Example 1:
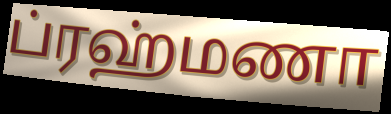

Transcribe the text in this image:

ப்ரஹ்மணா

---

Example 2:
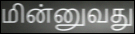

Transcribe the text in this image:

மின்னுவது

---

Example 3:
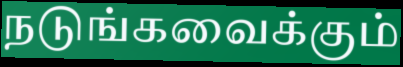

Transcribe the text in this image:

நடுங்கவைக்கும்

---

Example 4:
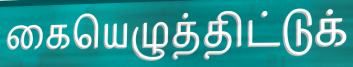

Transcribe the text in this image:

கையெழுத்திட்டுக்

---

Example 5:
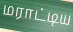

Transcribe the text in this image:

மராட்டிய